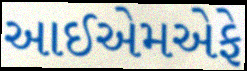
આઈએમએફે